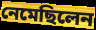
নেমেছিলেন